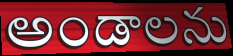
అండాలను